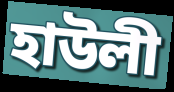
হাউলী